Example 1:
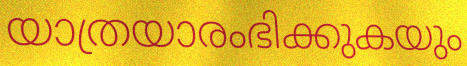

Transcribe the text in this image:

യാത്രയാരംഭിക്കുകയും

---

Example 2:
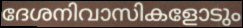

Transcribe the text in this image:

ദേശനിവാസികളോടും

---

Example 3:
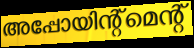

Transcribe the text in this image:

അപ്പോയിന്റ്മെന്റ്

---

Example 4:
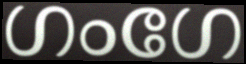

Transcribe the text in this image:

ഗംഗേ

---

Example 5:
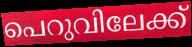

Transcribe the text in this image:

പെറുവിലേക്ക്